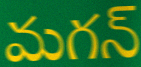
మగన్